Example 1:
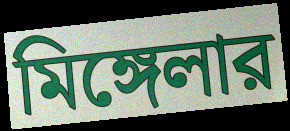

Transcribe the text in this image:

মিঙ্গেলার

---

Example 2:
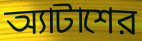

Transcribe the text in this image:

অ্যাটাশের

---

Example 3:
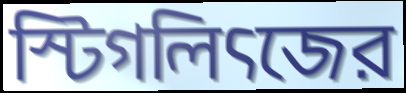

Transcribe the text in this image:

স্টিগলিৎজের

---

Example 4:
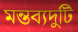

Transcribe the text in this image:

মন্তব্যদুটি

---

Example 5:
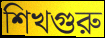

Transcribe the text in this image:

শিখগুরু